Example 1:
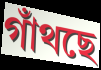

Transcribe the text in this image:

গাঁথছে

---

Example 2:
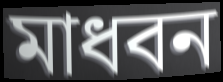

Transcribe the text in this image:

মাধবন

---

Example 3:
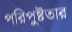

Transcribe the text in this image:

পরিপুষ্টতার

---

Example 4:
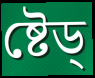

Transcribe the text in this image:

ষ্টেড্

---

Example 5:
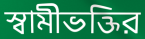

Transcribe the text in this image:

স্বামীভক্তির